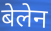
बेलेन